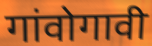
गांवोगावी